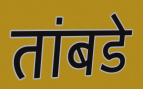
तांबडे